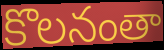
కొలనంతా